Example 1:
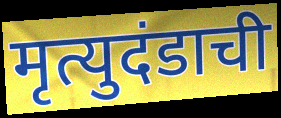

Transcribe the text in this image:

मृत्युदंडाची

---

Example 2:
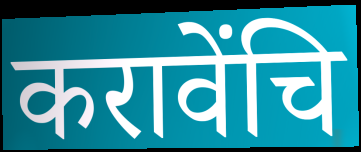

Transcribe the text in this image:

करावेंचि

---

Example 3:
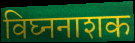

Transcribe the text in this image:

विघ्ननाशक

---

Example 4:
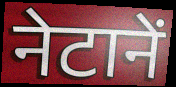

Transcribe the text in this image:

नेटानें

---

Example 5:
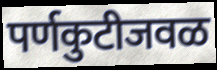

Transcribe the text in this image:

पर्णकुटीजवळ